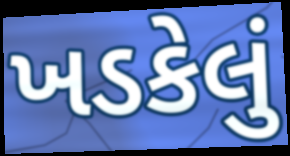
ખડકેલું